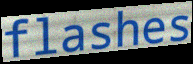
flashes